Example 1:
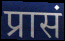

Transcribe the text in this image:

प्रासं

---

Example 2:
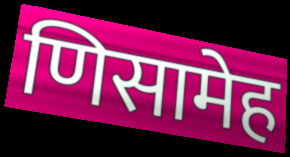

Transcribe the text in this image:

णिसामेह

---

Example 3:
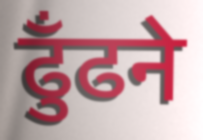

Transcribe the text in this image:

ढुँढने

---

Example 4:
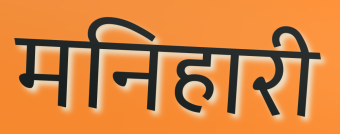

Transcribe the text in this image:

मनिहारी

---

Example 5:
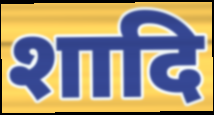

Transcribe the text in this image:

शादि